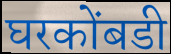
घरकोंबडी